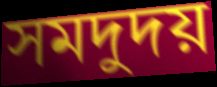
সমদুদয়